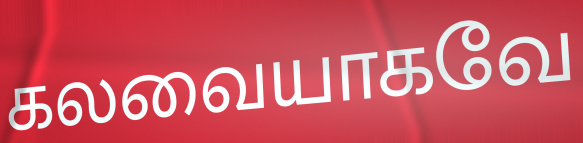
கலவையாகவே